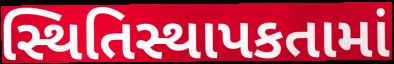
સ્થિતિસ્થાપકતામાં